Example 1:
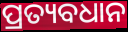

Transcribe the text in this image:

ପ୍ରତ୍ୟବଧାନ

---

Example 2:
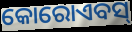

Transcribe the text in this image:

କୋରୋଏବସ୍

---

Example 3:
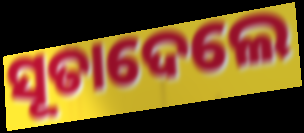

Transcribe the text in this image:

ସୂତାଦେଲେ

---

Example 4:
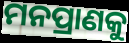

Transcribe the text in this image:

ମନପ୍ରାଣକୁ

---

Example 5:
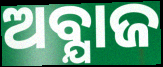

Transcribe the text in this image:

ଅବ୍ଯାଜ